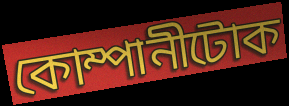
কোম্পানীটোক